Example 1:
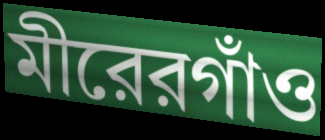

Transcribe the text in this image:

মীরেরগাঁও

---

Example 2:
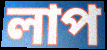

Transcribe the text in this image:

লাপ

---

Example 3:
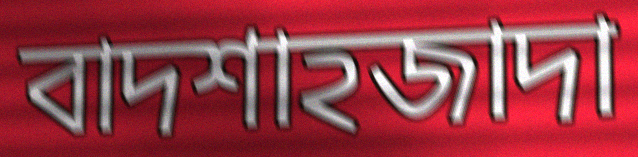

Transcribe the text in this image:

বাদশাহজাদা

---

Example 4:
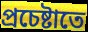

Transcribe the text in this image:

প্রচেষ্টাতে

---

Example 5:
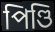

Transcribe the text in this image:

পিণ্ডি